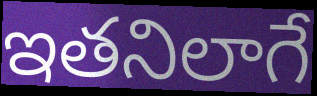
ఇతనిలాగే